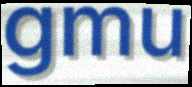
gmu